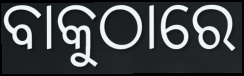
ବାକୁଠାରେ